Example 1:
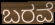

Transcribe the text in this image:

ಬರವೆ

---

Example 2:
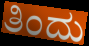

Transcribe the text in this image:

ತಿಂದು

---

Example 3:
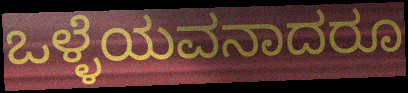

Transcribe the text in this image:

ಒಳ್ಳೆಯವನಾದರೂ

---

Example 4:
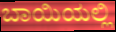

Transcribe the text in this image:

ಬಾಯಿಯಲ್ಲಿ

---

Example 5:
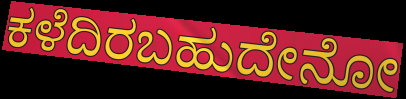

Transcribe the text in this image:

ಕಳೆದಿರಬಹುದೇನೋ